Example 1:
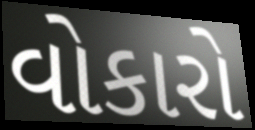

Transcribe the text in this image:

વોકારો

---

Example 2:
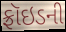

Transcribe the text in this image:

ફ્રૉઇડની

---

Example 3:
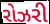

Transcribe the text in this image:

રોઝરી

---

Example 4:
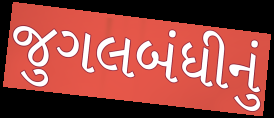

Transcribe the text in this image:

જુગલબંધીનું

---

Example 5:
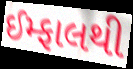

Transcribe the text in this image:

ઈમ્ફાલથી